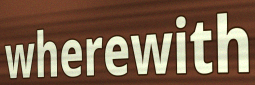
wherewith